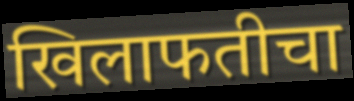
खिलाफतीचा